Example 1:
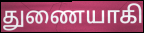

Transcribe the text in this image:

துணையாகி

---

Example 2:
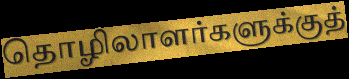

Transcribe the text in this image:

தொழிலாளர்களுக்குத்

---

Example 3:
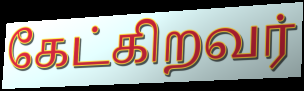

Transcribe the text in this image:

கேட்கிறவர்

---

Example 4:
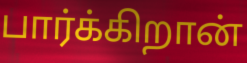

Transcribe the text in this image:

பார்க்கிறான்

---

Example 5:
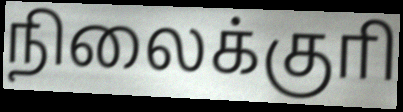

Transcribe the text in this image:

நிலைக்குரி